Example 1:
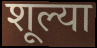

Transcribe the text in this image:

शूल्या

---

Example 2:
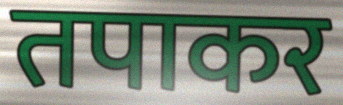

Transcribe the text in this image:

तपाकर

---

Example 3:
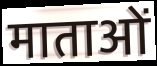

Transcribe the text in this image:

माताओं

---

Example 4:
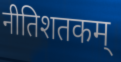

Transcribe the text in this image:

नीतिशतकम्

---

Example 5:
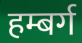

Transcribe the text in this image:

हम्बर्ग